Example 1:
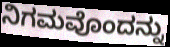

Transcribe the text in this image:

ನಿಗಮವೊಂದನ್ನು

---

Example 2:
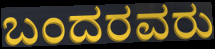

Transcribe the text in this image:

ಬಂದರವರು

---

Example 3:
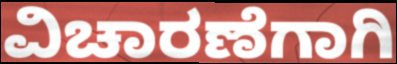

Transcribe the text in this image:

ವಿಚಾರಣೆಗಾಗಿ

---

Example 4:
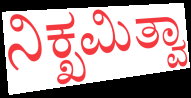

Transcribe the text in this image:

ನಿಕ್ಖಮಿತ್ವಾ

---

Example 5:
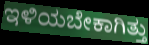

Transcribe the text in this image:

ಇಳಿಯಬೇಕಾಗಿತ್ತು